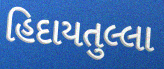
હિદાયતુલ્લા